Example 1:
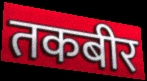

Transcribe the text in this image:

तकबीर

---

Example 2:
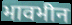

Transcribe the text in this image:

भावभीन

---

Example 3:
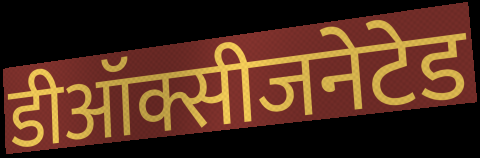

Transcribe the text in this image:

डीऑक्सीजनेटेड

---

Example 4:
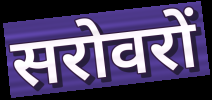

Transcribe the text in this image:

सरोवरों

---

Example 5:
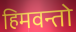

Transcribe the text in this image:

हिमवन्तो